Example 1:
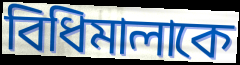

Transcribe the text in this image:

বিধিমালাকে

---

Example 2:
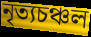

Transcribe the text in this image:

নৃত্যচঞ্চল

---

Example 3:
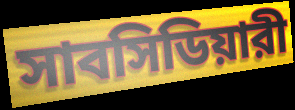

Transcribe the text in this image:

সাবসিডিয়ারী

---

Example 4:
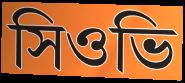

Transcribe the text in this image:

সিওভি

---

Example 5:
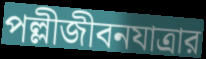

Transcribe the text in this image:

পল্লীজীবনযাত্রার